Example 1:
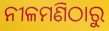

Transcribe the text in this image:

ନୀଳମଣିଠାରୁ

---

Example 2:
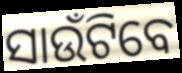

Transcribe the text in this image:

ସାଉଁଟିବେ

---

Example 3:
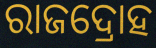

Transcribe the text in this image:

ରାଜଦ୍ରୋହ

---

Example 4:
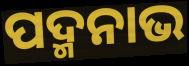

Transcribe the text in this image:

ପଦ୍ମନାଭ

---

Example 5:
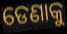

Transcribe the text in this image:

ଡେଣାକୁ